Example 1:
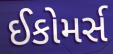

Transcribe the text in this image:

ઈકોમર્સ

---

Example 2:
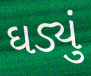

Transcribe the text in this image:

ઘડ્યું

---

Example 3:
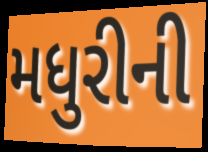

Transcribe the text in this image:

મધુરીની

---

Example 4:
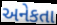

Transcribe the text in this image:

અનેકતા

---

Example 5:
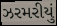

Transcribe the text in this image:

ઝરમરીયું